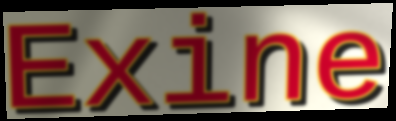
Exine